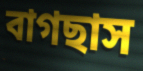
বাগছাস